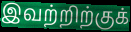
இவற்றிற்குக்